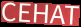
CEHAT